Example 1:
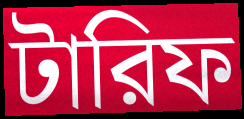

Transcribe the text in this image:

টারিফ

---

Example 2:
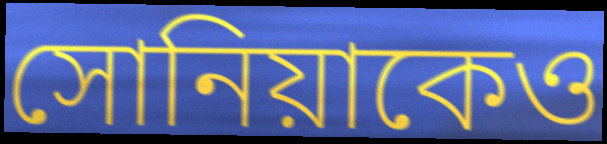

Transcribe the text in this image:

সোনিয়াকেও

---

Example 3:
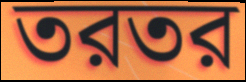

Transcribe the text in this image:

তরতর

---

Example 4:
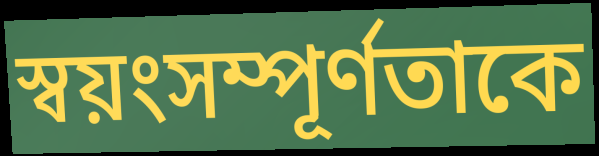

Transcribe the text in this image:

স্বয়ংসম্পূর্ণতাকে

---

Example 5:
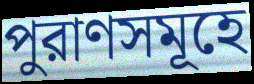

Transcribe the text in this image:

পুরাণসমূহে